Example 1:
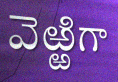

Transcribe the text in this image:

వెఱ్ఱిగా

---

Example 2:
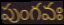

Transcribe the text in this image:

పుంగవః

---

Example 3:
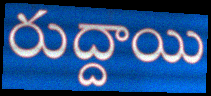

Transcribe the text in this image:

రుద్దాయి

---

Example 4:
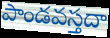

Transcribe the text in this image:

పాండవస్తదా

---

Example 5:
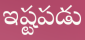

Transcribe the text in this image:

ఇష్టపడు